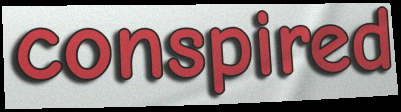
conspired